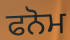
ਫਨੋਮ